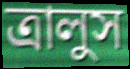
ত্রালুস